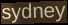
sydney